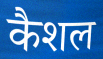
कैशल